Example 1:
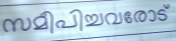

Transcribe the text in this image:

സമീപിച്ചവരോട്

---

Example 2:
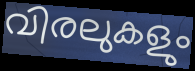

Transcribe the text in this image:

വിരലുകളും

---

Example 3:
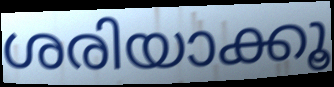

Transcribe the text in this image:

ശരിയാക്കൂ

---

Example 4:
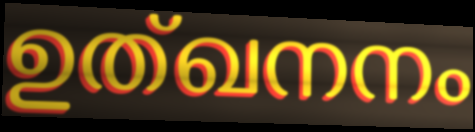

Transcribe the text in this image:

ഉത്ഖനനം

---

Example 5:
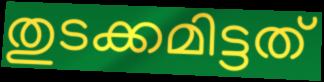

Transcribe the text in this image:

തുടക്കമിട്ടത്